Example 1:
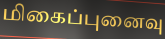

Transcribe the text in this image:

மிகைப்புனைவு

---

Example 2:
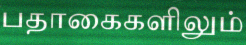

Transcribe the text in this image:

பதாகைகளிலும்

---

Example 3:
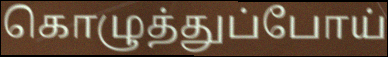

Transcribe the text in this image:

கொழுத்துப்போய்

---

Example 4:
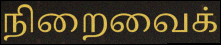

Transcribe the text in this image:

நிறைவைக்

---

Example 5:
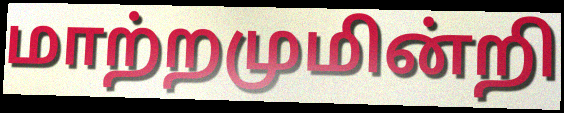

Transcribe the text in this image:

மாற்றமுமின்றி